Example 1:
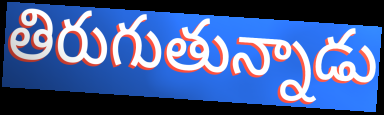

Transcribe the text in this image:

తిరుగుతున్నాడు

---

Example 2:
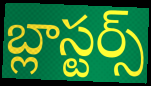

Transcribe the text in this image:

బ్లాస్టర్స్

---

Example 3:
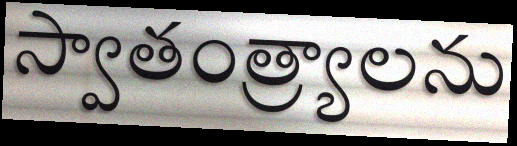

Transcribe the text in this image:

స్వాతంత్ర్యాలను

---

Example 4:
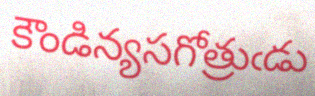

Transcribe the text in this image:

కౌండిన్యసగోత్రుఁడు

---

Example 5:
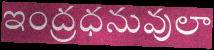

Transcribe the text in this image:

ఇంద్రధనువులా